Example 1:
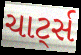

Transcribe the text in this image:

ચાર્ટ્સ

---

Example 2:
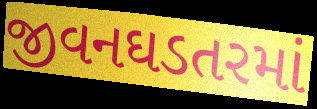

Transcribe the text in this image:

જીવનઘડતરમાં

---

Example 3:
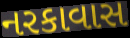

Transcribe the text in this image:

નરકાવાસ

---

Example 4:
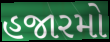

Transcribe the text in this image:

હજારમો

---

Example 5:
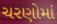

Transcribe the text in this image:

ચરણોમાં